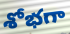
శోభగా